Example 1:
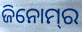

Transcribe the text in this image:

ଜିନୋମ୍‌ର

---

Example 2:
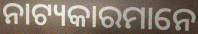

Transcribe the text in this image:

ନାଟ୍ୟକାରମାନେ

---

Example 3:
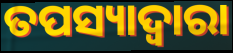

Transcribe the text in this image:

ତପସ୍ୟାଦ୍ୱାରା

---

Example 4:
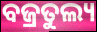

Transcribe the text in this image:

ବଜ୍ରତୁଲ୍ୟ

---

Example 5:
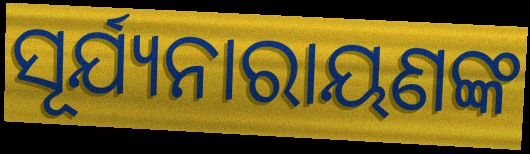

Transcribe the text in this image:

ସୂର୍ଯ୍ୟନାରାୟଣଙ୍କ